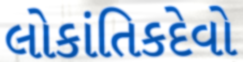
લોકાંતિકદેવો